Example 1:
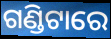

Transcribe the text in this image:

ଗଣ୍ଡିଟାରେ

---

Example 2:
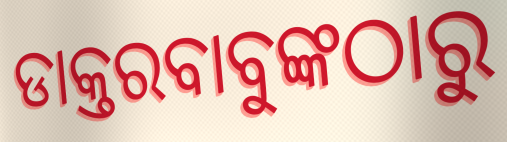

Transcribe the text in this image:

ଡାକ୍ତରବାବୁଙ୍କଠାରୁ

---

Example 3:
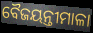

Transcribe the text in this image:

ବୈଜୟନ୍ତୀମାଳା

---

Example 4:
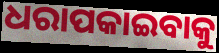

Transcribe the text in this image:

ଧରାପକାଇବାକୁ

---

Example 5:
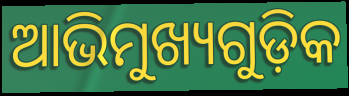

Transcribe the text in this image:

ଆଭିମୁଖ୍ୟଗୁଡ଼ିକ